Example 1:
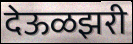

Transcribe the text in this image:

देऊळझरी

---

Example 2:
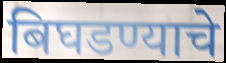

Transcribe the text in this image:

बिघडण्याचे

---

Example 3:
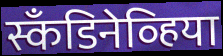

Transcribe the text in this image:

स्कँडिनेव्हिया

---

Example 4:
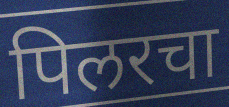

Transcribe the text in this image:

पिलरचा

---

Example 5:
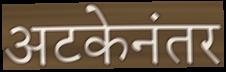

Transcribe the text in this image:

अटकेनंतर